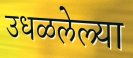
उधळलेल्या